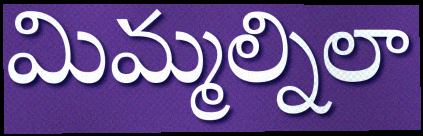
మిమ్మల్నిలా